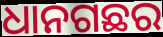
ଧାନଗଛର